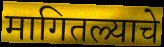
मागितल्याचे